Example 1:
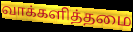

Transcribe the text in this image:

வாக்களித்தமை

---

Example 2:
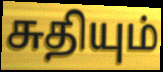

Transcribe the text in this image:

சுதியும்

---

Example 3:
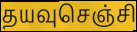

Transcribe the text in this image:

தயவுசெஞ்சி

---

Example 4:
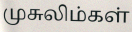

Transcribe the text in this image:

முசுலிம்கள்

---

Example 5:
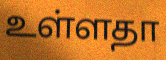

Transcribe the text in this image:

உள்ளதா